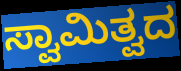
ಸ್ವಾಮಿತ್ವದ